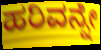
ಹರಿವನ್ನೇ